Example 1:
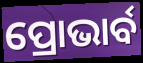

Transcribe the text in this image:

ପ୍ରୋଭାର୍ବ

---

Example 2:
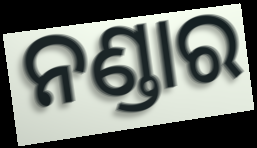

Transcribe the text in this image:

ନଣ୍ଡାର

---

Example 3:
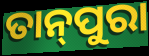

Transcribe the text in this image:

ତାନ୍‌ପୁରା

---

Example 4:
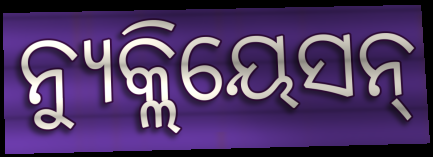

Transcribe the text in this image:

ନ୍ୟୁକ୍ଲିୟେସନ୍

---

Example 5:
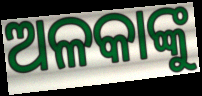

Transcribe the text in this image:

ଅଳକାଙ୍କୁ